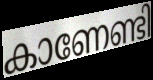
കാണേണ്ടി